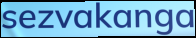
sezvakanga